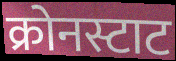
क्रोनस्टाट